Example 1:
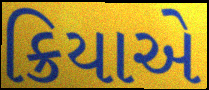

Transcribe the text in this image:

ક્રિયાએ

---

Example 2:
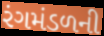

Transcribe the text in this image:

રંગમંડળની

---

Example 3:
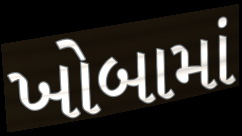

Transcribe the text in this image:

ખોબામાં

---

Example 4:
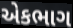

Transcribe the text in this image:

એકભાગ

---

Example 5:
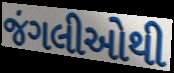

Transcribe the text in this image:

જંગલીઓથી